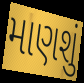
માણશું